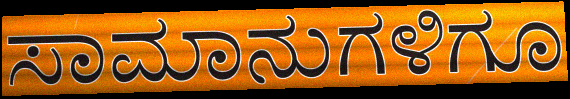
ಸಾಮಾನುಗಳಿಗೂ